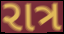
રાત્ર